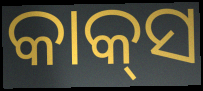
କାକ୍‌ସ